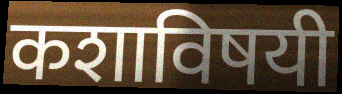
कशाविषयी